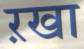
ऱखा